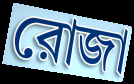
রোজা